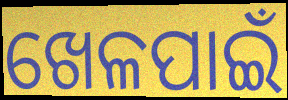
ଖେଳପାଇଁ